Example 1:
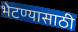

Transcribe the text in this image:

भेटण्यासाठी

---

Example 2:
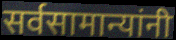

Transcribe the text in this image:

सर्वसामान्यांनी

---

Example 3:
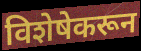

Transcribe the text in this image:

विशेषेकरून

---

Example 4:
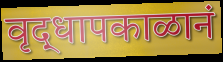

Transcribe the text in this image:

वृद्धापकाळानं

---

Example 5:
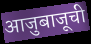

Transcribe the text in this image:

आजुबाजूची